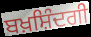
ਬਖ਼ਸ਼ਿੰਦਗੀ